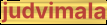
judvimala